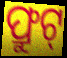
ଫ୍ରୁଟ୍